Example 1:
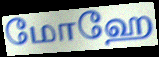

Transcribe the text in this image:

மோஹே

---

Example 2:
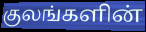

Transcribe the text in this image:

குலங்களின்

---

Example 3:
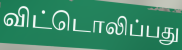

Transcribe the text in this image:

விட்டொலிப்பது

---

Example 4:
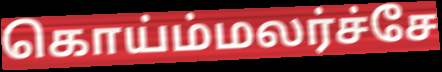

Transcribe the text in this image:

கொய்ம்மலர்ச்சே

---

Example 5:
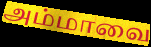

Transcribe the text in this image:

அம்மாவை